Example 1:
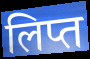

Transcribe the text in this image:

लिप्त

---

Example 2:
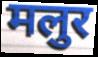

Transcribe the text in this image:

मलुर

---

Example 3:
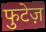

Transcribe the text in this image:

फुटेज़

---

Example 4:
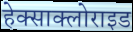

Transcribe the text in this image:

हेक्साक्लोराइड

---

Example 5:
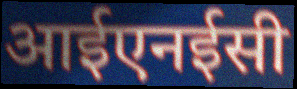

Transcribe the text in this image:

आईएनईसी